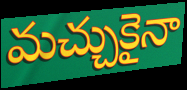
మచ్చుకైనా